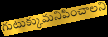
గుటుక్కుమనిపించాలని